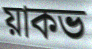
য়াকভ